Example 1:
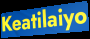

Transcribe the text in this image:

Keatilaiyo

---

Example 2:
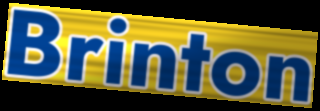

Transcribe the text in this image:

Brinton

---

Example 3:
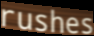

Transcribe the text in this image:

rushes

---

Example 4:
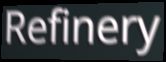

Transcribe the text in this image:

Refinery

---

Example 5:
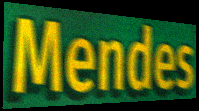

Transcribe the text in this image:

Mendes